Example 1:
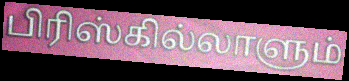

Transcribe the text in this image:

பிரிஸ்கில்லாளும்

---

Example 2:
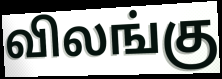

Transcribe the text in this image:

விலங்கு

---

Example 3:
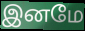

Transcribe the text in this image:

இனமே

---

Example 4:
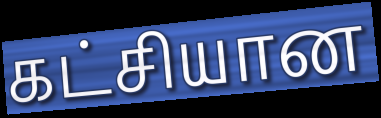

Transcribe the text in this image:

கட்சியான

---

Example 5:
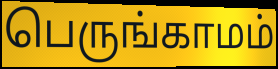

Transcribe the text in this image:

பெருங்காமம்